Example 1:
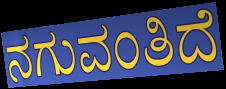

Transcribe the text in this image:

ನಗುವಂತಿದೆ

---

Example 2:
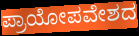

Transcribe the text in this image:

ಪ್ರಾಯೋಪವೇಶದ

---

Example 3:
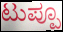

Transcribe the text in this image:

ಟುಪ್ಪೂ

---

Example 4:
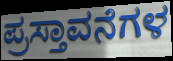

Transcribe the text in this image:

ಪ್ರಸ್ತಾವನೆಗಳ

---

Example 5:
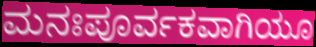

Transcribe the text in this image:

ಮನಃಪೂರ್ವಕವಾಗಿಯೂ